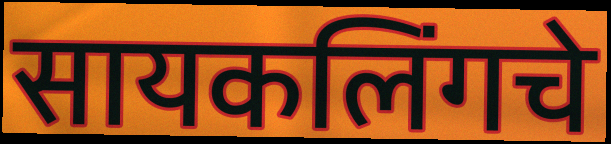
सायकलिंगचे